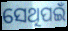
ସେଥିପଇଁ